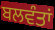
ਬਲਵੰਤਾਂ